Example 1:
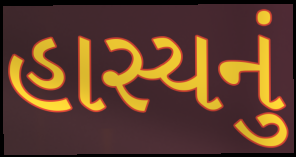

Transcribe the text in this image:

હાસ્યનું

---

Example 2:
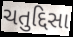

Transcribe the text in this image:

ચતુદ્દિસા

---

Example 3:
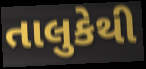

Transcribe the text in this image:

તાલુકેથી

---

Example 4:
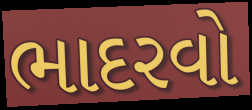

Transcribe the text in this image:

ભાદરવો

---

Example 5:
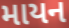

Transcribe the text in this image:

માયન